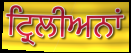
ਟ੍ਰਿਲੀਅਨਾਂ